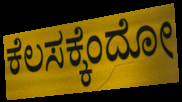
ಕೆಲಸಕ್ಕೆಂದೋ